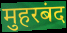
मुहरबंद